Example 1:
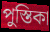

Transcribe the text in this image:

পুস্তিকা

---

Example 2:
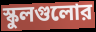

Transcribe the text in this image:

স্কুলগুলোর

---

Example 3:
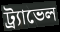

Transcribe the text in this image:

ট্র্যাভেল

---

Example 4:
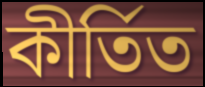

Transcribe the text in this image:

কীর্তিত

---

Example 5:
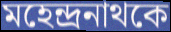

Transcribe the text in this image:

মহেন্দ্রনাথকে